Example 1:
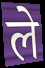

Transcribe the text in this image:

ले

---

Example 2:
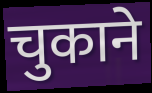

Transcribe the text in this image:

चुकाने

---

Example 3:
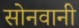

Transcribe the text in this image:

सोनवानी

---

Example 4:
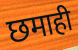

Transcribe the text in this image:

छमाही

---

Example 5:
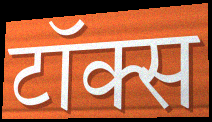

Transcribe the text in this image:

टॉक्स